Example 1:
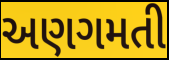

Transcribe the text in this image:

અણગમતી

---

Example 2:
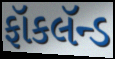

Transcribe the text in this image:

ફૉકલૅન્ડ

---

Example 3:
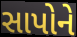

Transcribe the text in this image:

સાપોને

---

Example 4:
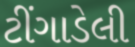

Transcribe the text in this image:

ટીંગાડેલી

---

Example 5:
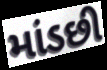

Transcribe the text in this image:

માંડછી